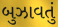
બુઝાવતું